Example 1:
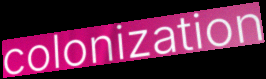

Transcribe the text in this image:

colonization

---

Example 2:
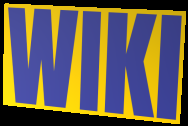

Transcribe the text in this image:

WIKI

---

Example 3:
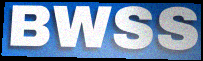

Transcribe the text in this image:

BWSS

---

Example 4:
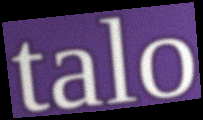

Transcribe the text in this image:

talo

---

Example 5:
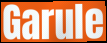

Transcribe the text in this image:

Garule